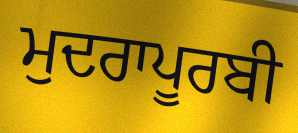
ਮੁਦਰਾਪੂਰਬੀ